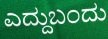
ಎದ್ದುಬಂದು